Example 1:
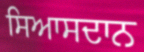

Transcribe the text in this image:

ਸਿਆਸਦਾਨ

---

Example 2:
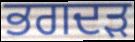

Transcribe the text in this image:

ਭਗਦੜ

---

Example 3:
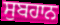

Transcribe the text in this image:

ਸੁਬਹਾਨ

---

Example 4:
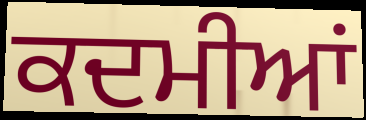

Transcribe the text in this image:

ਕਦਮੀਆਂ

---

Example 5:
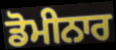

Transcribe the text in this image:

ਡੋਮੀਨਾਰ